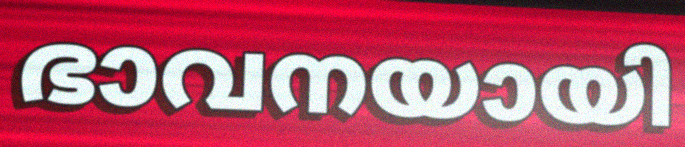
ഭാവനയായി